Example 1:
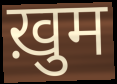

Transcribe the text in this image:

ख़ुम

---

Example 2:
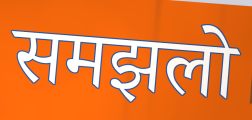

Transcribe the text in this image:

समझलो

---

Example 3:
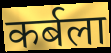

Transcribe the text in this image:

कर्बला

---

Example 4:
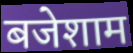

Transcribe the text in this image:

बजेशाम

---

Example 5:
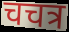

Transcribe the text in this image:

चचत्र